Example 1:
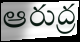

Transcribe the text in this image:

ఆరుద్ర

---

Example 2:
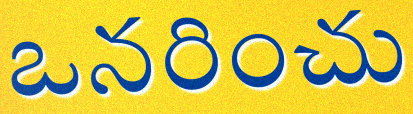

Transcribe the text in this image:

ఒనరించు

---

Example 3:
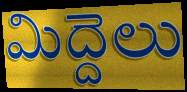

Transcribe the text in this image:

మిద్దెలు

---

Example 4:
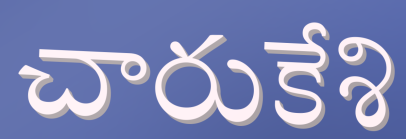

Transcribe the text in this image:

చారుకేశి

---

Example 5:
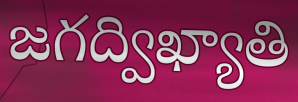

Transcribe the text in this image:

జగద్విఖ్యాతి